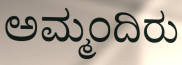
ಅಮ್ಮಂದಿರು